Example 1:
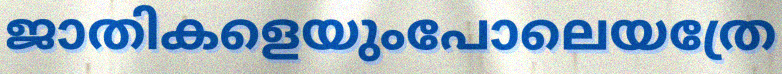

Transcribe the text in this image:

ജാതികളെയുംപോലെയത്രേ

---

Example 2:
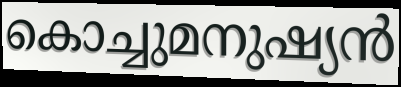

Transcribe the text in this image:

കൊച്ചുമനുഷ്യൻ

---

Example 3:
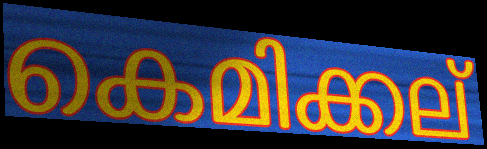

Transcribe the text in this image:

കെമിക്കല്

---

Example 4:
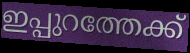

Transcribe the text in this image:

ഇപ്പുറത്തേക്ക്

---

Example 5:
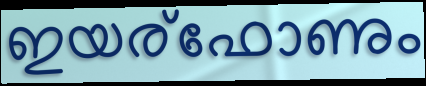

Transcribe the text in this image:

ഇയര്ഫോണും